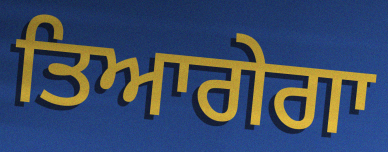
ਤਿਆਗੇਗਾ